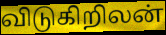
விடுகிறிலன்